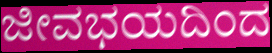
ಜೀವಭಯದಿಂದ